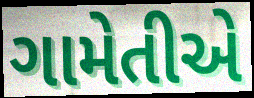
ગામેતીએ